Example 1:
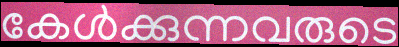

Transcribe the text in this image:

കേൾക്കുന്നവരുടെ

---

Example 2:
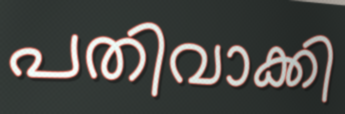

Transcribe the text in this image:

പതിവാക്കി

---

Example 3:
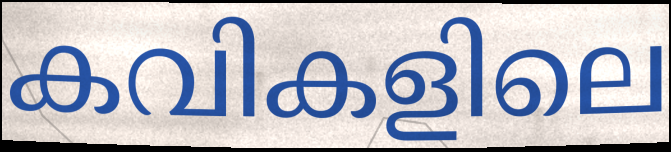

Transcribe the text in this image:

കവികളിലെ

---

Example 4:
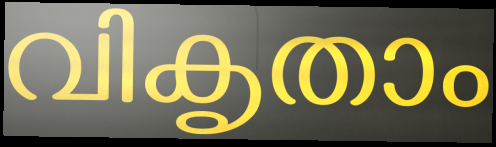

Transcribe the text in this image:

വികൃതാം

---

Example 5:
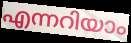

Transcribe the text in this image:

എന്നറിയാം